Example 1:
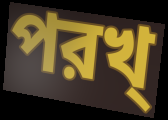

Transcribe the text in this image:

পরখ্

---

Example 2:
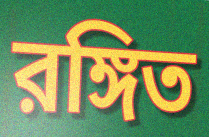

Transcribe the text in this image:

রঙ্গিত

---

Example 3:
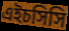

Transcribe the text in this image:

এইচসিসি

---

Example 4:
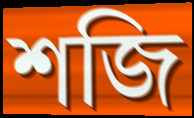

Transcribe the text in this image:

শজি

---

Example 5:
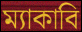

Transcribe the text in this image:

ম্যাকাবি